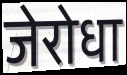
जेरोधा